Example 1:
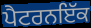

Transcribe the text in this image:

ਪੈਟਰਨਇੱਕ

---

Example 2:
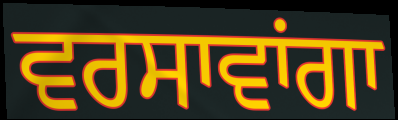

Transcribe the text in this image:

ਵਰਸਾਵਾਂਗਾ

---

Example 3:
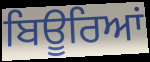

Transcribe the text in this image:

ਬਿਊਰਿਆਂ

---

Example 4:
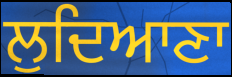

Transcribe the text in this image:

ਲੁਦਿਆਣਾ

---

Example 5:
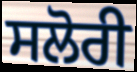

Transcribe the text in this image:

ਸਲੋਰੀ